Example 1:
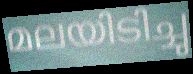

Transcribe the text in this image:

മലയിടിച്ചു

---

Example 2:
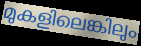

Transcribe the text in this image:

മുകളിലെങ്കിലും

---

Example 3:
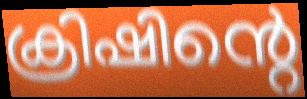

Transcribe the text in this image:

ക്രിഷിന്റെ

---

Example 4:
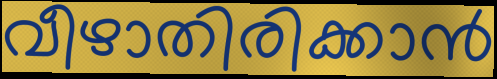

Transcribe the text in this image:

വീഴാതിരിക്കാൻ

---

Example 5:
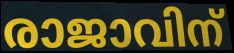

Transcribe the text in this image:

രാജാവിന്